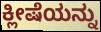
ಕ್ಲೀಷೆಯನ್ನು